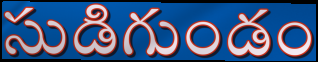
సుడిగుండం